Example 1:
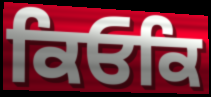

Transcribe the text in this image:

ਕਿਓਕਿ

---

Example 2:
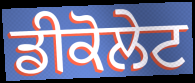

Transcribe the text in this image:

ਡੀਕੋਲੇਟ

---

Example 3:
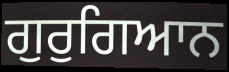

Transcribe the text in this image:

ਗੁਰੁਗਿਆਨ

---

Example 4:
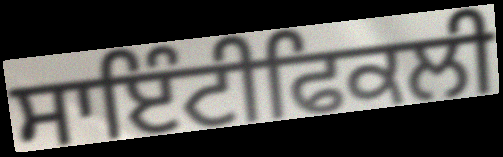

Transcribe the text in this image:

ਸਾਇੰਟੀਫਿਕਲੀ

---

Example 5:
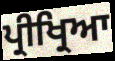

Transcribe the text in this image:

ਪ੍ਰੀਖ੍ਰਿਆ